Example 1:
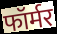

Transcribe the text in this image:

फॉर्मर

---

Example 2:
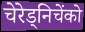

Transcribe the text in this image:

चेरेड्निचेंको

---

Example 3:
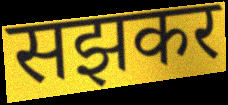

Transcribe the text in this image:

सझकर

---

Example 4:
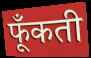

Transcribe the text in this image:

फूँकती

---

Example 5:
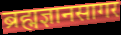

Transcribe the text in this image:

ब्रह्मज्ञानसागर